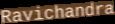
Ravichandra